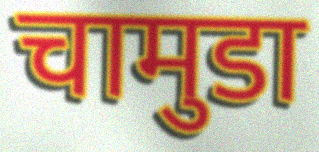
चामुडा